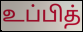
உப்பித்